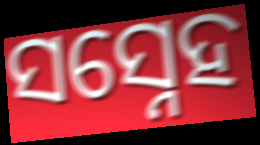
ସସ୍ନେହ